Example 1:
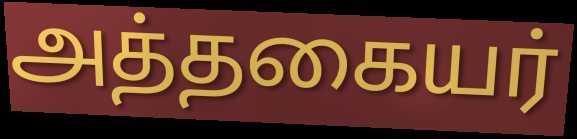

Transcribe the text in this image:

அத்தகையர்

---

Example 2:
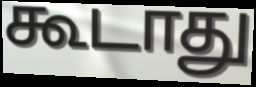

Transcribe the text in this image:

கூடாது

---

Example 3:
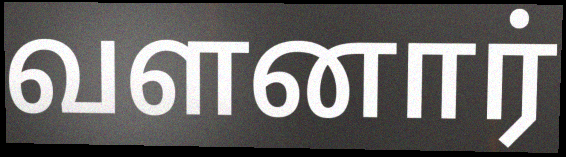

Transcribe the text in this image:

வளனார்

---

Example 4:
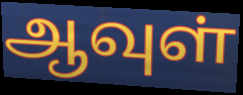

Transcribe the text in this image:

ஆவுள்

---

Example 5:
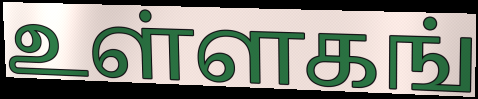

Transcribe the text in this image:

உள்ளகங்